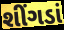
શીંગડાં